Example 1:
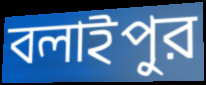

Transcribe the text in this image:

বলাইপুর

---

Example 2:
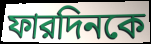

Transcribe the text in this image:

ফারদিনকে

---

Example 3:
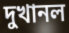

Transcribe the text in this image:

দুখানল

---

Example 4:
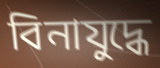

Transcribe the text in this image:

বিনাযুদ্ধে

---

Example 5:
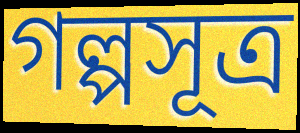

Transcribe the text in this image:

গল্পসূত্র